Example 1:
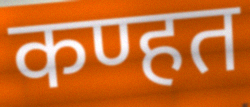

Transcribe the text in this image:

कण्हत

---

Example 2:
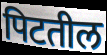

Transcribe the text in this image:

पिटतील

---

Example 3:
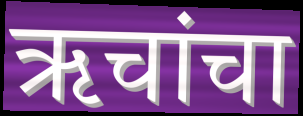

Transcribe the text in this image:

ऋचांचा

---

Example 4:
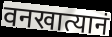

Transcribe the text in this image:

वनखात्यानं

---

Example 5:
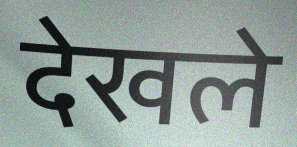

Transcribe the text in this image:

देखले